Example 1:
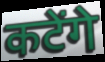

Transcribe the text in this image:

कटेंगे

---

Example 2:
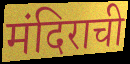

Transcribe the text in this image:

मंदिराची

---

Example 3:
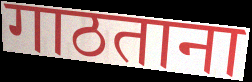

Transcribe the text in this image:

गाठताना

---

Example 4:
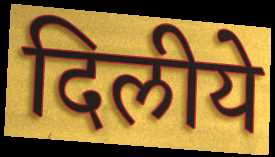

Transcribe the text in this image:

दिलीये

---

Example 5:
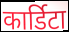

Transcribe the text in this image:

कार्डिटा